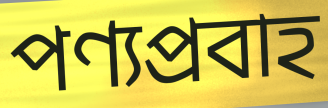
পণ্যপ্রবাহ